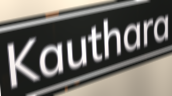
Kauthara